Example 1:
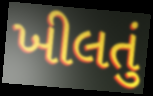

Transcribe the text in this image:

ખીલતું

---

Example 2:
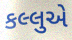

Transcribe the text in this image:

કલ્લુએ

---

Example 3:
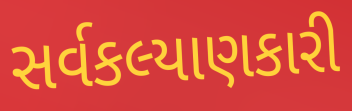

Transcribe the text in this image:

સર્વકલ્યાણકારી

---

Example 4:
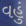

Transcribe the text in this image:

વહું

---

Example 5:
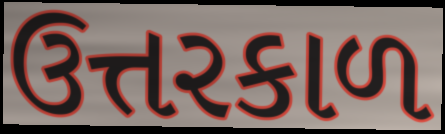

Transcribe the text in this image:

ઉત્તરકાળ